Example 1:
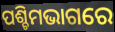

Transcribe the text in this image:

ପଶ୍ଚିମଭାଗରେ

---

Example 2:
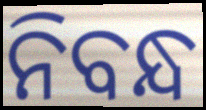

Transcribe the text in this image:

ନିବନ୍ଧ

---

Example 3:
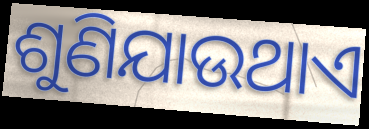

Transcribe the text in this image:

ଶୁଣିଯାଉଥାଏ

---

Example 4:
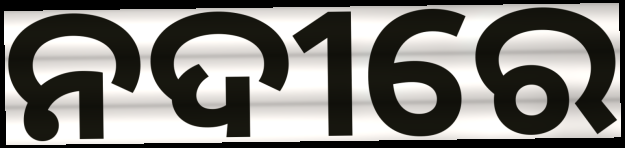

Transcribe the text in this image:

ନଦୀରେ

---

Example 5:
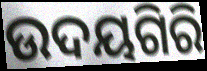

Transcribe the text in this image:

ଉଦୟଗିରି